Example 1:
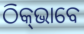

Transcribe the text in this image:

ଠିକ୍‌ଭାବେ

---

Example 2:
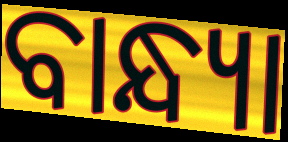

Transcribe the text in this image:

ବାନ୍ଧ୍ୟା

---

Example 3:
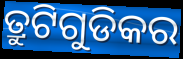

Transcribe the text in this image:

ତ୍ରୁଟିଗୁଡିକର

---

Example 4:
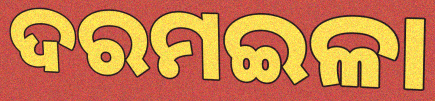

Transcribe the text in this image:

ଦରମଇଳା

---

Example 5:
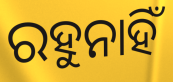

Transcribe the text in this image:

ରହୁନାହିଁ